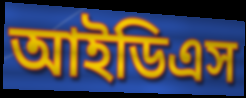
আইডিএস